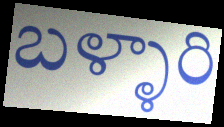
బళ్ళారి